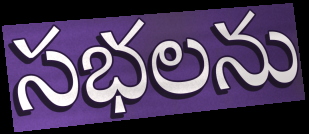
సభలను